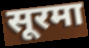
सूरमा